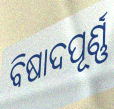
ବିଷାଦପୂର୍ଣ୍ଣ